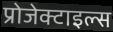
प्रोजेक्टाइल्स